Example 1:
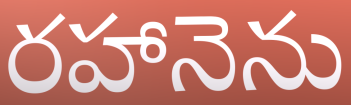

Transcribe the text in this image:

రహానెను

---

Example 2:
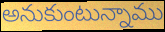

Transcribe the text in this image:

అనుకుంటున్నాము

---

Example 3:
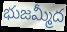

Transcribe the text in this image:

భుజమ్మీద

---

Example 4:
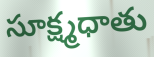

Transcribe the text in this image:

సూక్ష్మధాతు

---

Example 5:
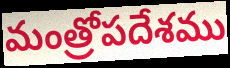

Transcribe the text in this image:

మంత్రోపదేశము